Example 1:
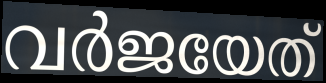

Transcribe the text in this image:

വർജയേത്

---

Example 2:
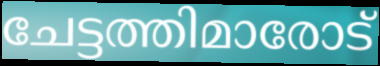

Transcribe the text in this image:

ചേട്ടത്തിമാരോട്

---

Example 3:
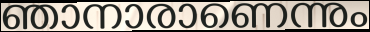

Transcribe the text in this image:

ഞാനാരാണെന്നും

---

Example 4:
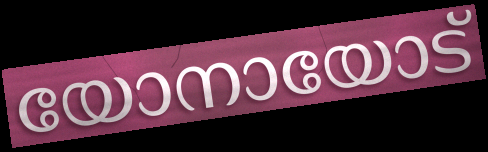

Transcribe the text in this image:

യോനായോട്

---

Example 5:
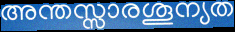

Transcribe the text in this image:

അന്തസ്സാരശൂന്യത